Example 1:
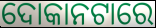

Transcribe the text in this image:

ଦୋକାନଟାରେ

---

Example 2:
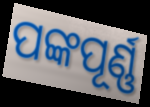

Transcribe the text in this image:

ପଙ୍କପୂର୍ଣ୍ଣ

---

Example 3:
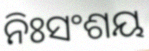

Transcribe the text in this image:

ନିଃସଂଶୟ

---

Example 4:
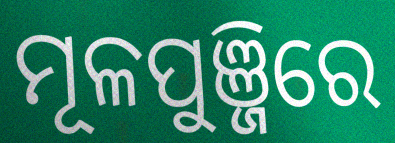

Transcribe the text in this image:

ମୂଳପୁଞ୍ଜିରେ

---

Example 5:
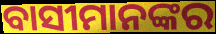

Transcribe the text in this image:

ବାସୀମାନଙ୍କର